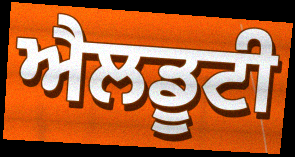
ਐਲਡੂਟੀ